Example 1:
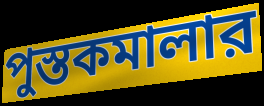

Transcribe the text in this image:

পুস্তকমালার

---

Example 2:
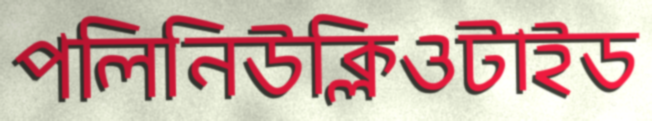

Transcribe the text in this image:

পলিনিউক্লিওটাইড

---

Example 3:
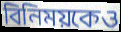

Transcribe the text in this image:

বিনিময়কেও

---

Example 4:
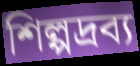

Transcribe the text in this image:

শিল্পদ্রব্য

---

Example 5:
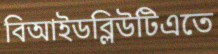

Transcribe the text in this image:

বিআইডব্লিউটিএতে